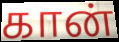
கான்